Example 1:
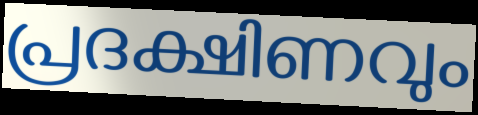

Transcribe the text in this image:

പ്രദക്ഷിണവും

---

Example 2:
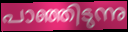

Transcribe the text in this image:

പാഞ്ഞിടുന്നു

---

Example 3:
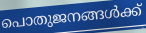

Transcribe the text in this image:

പൊതുജനങ്ങൾക്ക്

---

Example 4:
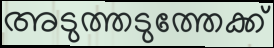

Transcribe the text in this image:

അടുത്തടുത്തേക്ക്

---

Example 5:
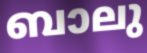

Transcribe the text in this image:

ബാലു